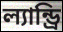
ল্যান্ড্রি